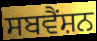
ਸਬਵੈਂਸ਼ਨ